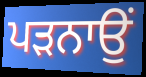
ਪਡ਼ਨਾਉਂ